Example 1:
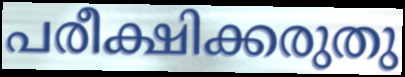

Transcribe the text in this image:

പരീക്ഷിക്കരുതു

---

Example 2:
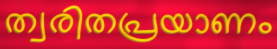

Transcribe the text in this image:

ത്വരിതപ്രയാണം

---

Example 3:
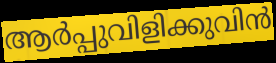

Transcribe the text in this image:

ആർപ്പുവിളിക്കുവിൻ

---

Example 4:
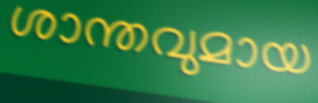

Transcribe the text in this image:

ശാന്തവുമായ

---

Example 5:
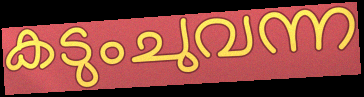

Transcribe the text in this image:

കടുംചുവന്ന